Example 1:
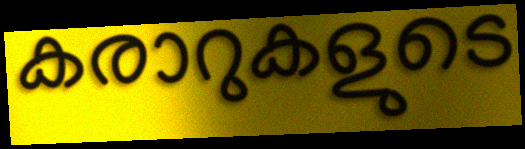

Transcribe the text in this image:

കരാറുകളുടെ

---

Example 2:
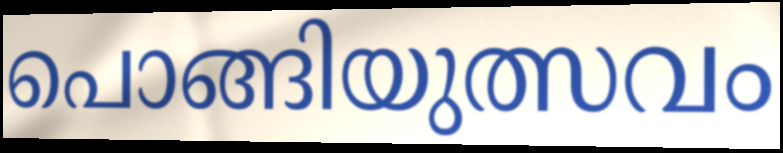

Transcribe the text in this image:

പൊങ്ങിയുത്സവം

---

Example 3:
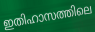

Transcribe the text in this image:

ഇതിഹാസത്തിലെ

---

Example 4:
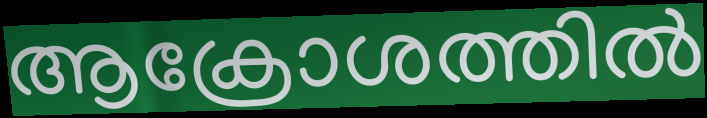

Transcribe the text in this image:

ആക്രോശത്തിൽ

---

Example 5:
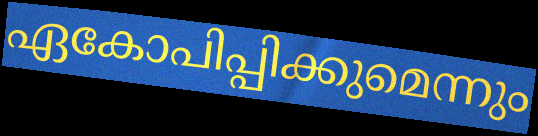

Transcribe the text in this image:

ഏകോപിപ്പിക്കുമെന്നും